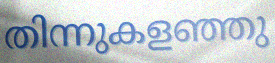
തിന്നുകളഞ്ഞു